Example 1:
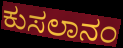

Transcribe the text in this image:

ಕುಸಲಾನಂ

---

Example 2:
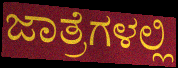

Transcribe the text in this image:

ಜಾತ್ರೆಗಳಲ್ಲಿ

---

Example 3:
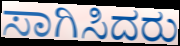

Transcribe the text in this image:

ಸಾಗಿಸಿದರು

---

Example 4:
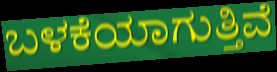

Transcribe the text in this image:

ಬಳಕೆಯಾಗುತ್ತಿವೆ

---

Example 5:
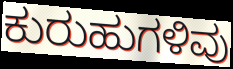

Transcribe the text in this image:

ಕುರುಹುಗಳಿವು